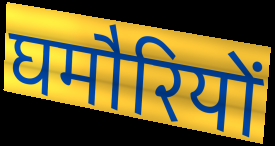
घमौरियों